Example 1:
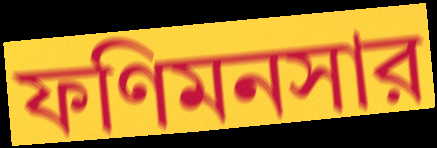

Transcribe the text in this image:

ফণিমনসার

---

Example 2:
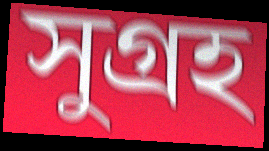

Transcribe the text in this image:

সুগ্রহ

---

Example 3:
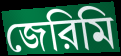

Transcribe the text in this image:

জেরিমি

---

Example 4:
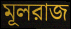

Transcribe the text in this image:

মূলরাজ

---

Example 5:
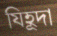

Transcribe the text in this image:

যিহূদা